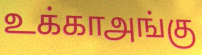
உக்காஅங்கு